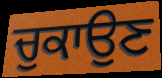
ਚੁਕਾਉਣ